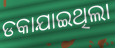
ଡକାଯାଇଥିଲା